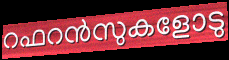
റഫറൻസുകളോടു